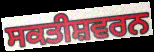
ਸਕਤੀਸ਼ਵਰਨ